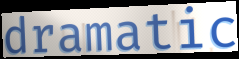
dramatic